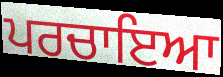
ਪਰਚਾਇਆ